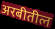
अरबीतील